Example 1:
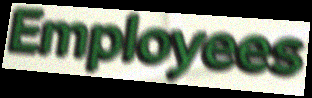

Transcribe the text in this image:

Employees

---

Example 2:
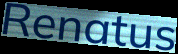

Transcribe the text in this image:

Renatus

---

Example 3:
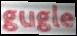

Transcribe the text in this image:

gugle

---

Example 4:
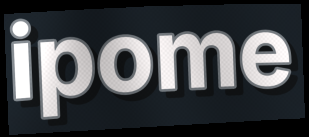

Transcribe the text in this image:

ipome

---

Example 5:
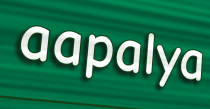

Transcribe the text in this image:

aapalya